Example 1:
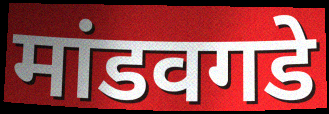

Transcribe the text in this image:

मांडवगडे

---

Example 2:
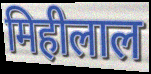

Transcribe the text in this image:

मिहीलाल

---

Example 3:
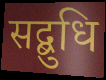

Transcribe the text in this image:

सद्बुधि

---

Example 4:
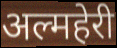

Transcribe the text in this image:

अल्महेरी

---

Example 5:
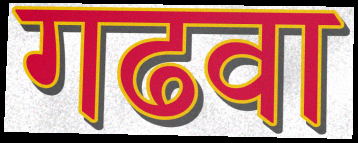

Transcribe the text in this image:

गढवा